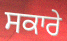
ਸਕਾਰੇ